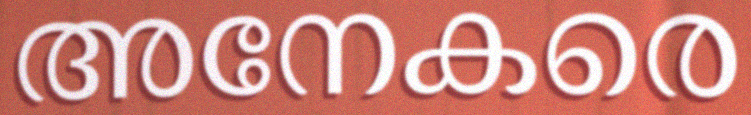
അനേകരെ